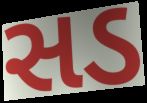
સડ